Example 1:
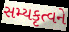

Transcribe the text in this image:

સમ્યકૃત્વને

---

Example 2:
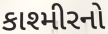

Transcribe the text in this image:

કાશ્મીરનો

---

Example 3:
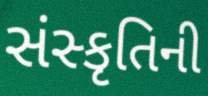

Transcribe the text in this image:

સંસ્કૃતિની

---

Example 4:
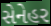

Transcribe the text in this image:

સેનેહર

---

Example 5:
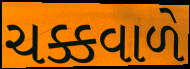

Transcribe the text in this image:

ચક્કવાળે